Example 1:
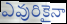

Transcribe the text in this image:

ఎవురికైనా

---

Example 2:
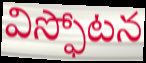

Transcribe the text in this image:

విస్ఫోటన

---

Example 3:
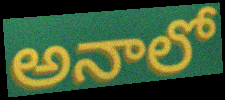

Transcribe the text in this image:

అనాలో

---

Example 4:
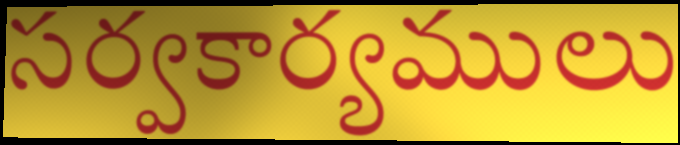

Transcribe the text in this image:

సర్వకార్యములు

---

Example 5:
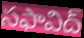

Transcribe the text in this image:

సఫావిద్